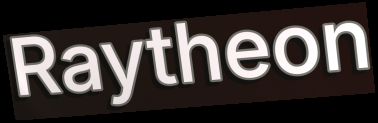
Raytheon